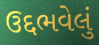
ઉદ્દભવેલું